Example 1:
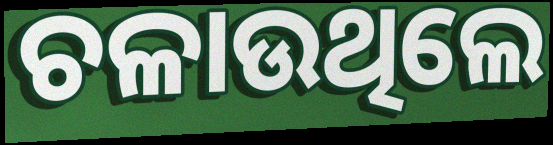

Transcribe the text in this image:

ଚଳାଉଥିଲେ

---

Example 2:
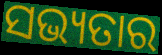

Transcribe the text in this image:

ସଭ୍ୟତାର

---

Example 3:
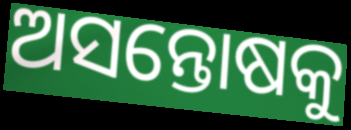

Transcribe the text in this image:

ଅସନ୍ତୋଷକୁ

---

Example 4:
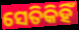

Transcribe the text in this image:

ସେତିକିହିଁ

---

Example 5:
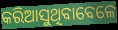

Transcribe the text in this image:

କରିଆସୁଥିବାବେଳେ